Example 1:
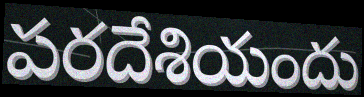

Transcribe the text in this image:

పరదేశియందు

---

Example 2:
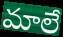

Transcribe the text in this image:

మాలే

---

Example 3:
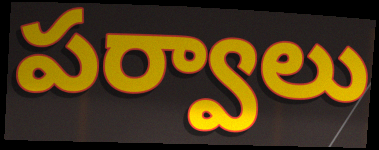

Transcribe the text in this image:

పర్వాలు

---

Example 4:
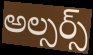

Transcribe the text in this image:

అల్సర్స్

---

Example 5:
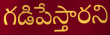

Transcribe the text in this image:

గడిపేస్తారని